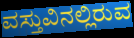
ವಸ್ತುವಿನಲ್ಲಿರುವ